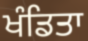
ਖੰਡਿਤਾ